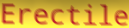
Erectile